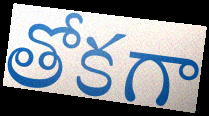
తోకగా